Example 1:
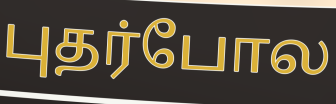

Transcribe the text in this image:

புதர்போல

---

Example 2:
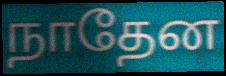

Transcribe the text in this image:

நாதேன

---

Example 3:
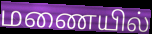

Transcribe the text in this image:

மணையில்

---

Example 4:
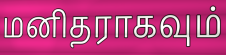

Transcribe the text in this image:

மனிதராகவும்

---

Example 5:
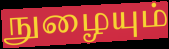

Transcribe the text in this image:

நுழையும்